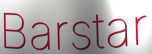
Barstar